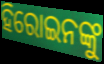
ହିରୋଇନଙ୍କୁ